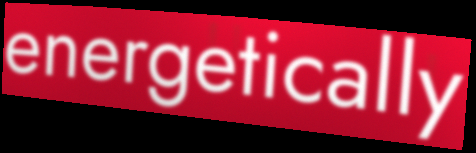
energetically